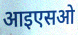
आइएसओ